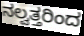
ನಲ್ವತ್ತರಿಂದ